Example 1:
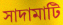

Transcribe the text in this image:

সাদামাটি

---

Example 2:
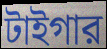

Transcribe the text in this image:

টাইগার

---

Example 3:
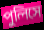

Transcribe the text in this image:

পুলিসে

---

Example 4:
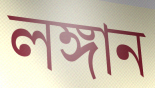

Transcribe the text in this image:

লঙ্গান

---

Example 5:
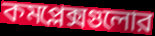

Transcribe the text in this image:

কমপ্লেক্সগুলোর